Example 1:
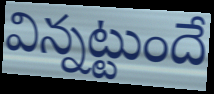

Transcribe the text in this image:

విన్నట్టుందే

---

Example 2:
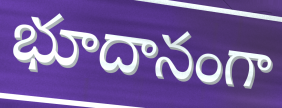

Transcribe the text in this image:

భూదానంగా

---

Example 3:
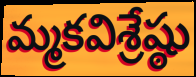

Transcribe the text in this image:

మ్మకవిశ్రేష్ఠు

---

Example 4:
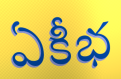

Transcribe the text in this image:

ఏకీభ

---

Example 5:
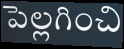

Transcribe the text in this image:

పెల్లగించి